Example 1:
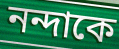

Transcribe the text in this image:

নন্দাকে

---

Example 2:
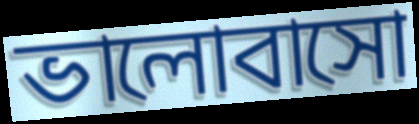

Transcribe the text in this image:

ভালোবাসো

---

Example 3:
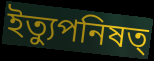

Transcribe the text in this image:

ইত্যুপনিষত্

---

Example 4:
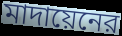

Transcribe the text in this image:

মাদায়েনের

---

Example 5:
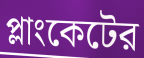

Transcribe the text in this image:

প্লাংকেটের